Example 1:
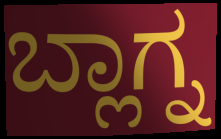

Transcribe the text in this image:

ಬ್ಲಾಗ್ನ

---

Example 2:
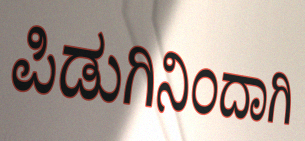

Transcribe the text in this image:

ಪಿಡುಗಿನಿಂದಾಗಿ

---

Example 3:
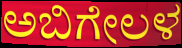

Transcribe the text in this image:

ಅಬಿಗೇಲಳ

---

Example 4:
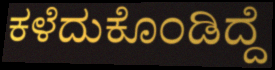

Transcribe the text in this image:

ಕಳೆದುಕೊಂಡಿದ್ದೆ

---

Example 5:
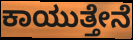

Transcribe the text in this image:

ಕಾಯುತ್ತೇನೆ